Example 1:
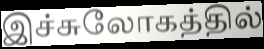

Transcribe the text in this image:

இச்சுலோகத்தில்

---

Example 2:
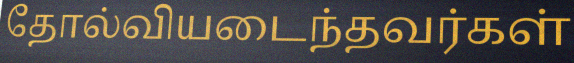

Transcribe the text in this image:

தோல்வியடைந்தவர்கள்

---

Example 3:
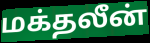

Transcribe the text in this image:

மக்தலீன்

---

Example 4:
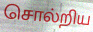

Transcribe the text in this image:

சொல்றிய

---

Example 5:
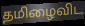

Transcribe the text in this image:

தமிழைவிட